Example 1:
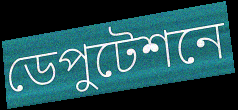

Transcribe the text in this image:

ডেপুটেশনে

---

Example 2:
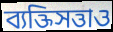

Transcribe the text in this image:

ব্যক্তিসত্তাও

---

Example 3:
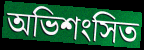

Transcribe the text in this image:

অভিশংসিত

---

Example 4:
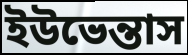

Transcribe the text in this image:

ইউভেন্তাস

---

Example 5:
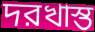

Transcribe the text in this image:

দরখাস্ত